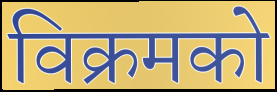
विक्रमको